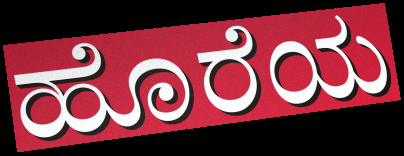
ಹೊರೆಯ